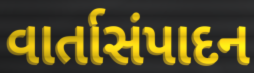
વાર્તાસંપાદન